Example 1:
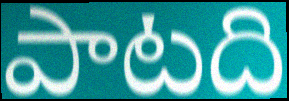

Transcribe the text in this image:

పాటది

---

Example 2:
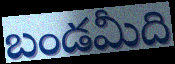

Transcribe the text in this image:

బండమీది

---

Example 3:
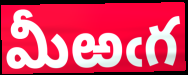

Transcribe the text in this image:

మీఱఁగ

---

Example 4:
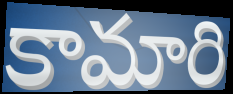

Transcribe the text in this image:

కామారి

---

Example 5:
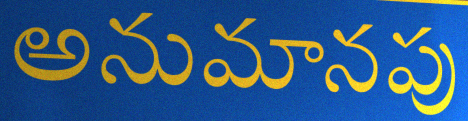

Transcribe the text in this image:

అనుమానపు